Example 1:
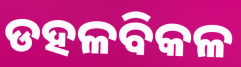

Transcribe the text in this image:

ଡହଳବିକଳ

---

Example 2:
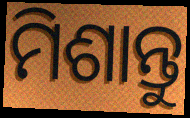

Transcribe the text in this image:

ମିଶାନ୍ତୁ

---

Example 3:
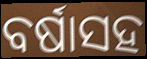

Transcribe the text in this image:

ବର୍ଷାସହ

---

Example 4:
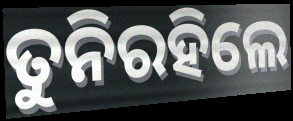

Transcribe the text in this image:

ତୁନିରହିଲେ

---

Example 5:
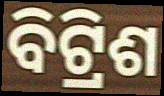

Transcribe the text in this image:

ବିଟ୍ରିଶ